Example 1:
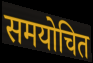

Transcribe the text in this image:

समयोचित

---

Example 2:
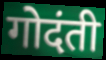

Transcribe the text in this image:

गोदंती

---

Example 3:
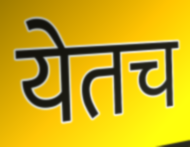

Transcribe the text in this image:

येतच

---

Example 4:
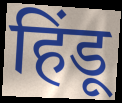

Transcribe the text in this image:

हिंडू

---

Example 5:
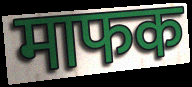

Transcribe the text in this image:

माफक